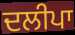
ਦਲੀਪਾ